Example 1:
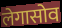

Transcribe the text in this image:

लेगासोव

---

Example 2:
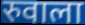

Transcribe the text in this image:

रुवाला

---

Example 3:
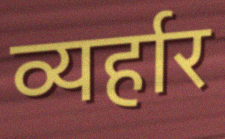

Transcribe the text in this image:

व्यर्हार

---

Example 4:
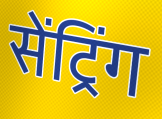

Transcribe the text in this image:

सेंट्रिंग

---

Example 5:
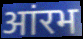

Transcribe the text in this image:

आंरभ